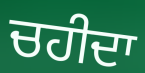
ਚਹੀਦਾ